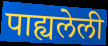
पाह्यलेली